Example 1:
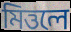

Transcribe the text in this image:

মিত্তলে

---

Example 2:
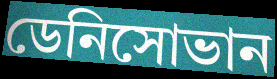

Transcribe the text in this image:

ডেনিসোভান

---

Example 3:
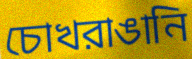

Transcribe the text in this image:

চোখরাঙানি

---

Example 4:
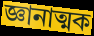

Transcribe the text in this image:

জ্ঞানাত্মক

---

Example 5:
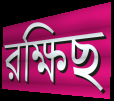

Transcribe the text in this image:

রক্ষিছ